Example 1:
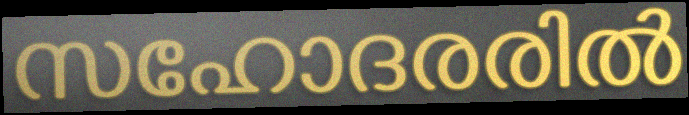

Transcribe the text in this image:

സഹോദരരിൽ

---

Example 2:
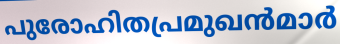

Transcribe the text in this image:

പുരോഹിതപ്രമുഖൻമാർ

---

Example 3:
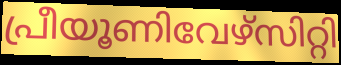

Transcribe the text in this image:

പ്രീയൂണിവേഴ്സിറ്റി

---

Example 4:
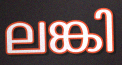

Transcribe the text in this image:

ലങ്കി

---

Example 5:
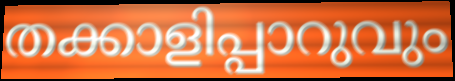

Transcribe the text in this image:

തക്കാളിപ്പാറുവും